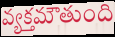
వ్యక్తమౌతుంది